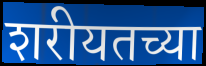
शरीयतच्या